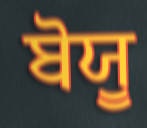
ਬੋਯੂ